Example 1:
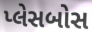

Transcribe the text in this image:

પ્લેસબોસ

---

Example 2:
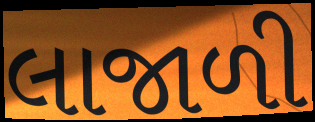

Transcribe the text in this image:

લાજાળી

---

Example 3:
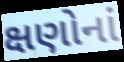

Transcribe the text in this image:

ક્ષણોનાં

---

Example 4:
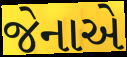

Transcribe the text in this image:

જેનાએ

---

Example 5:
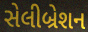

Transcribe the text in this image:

સેલીબ્રેશન